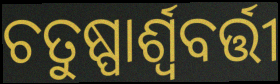
ଚତୁଷ୍ପାର୍ଶ୍ୱବର୍ତ୍ତୀ